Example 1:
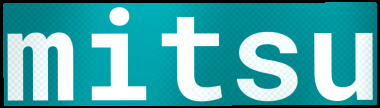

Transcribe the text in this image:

mitsu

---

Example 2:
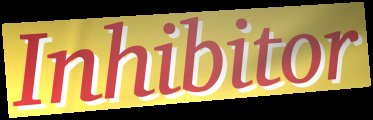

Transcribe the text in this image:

Inhibitor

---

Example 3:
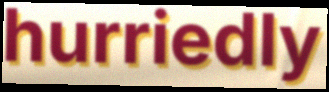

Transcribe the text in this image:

hurriedly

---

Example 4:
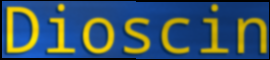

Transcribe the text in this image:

Dioscin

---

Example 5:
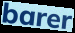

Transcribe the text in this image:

barer